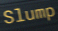
Slump